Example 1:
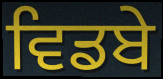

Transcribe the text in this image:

ਵਿਡਬੇ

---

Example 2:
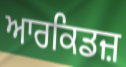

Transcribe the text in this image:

ਆਰਕਿਡਜ਼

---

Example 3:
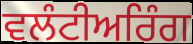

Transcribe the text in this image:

ਵਲੰਟੀਅਰਿੰਗ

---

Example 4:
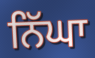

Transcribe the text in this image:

ਨਿੱਘਾ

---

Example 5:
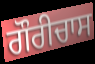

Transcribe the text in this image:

ਗੌਰੀਚਾਸ